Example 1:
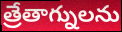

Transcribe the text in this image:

త్రేతాగ్నులను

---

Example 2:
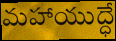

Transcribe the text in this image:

మహాయుద్ధే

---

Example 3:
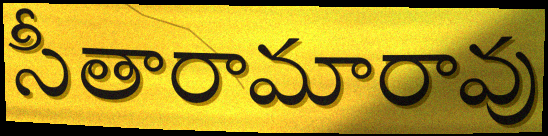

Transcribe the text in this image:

సీతారామారావు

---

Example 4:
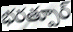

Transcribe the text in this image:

భరత్పూర్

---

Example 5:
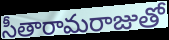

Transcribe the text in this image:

సీతారామరాజుతో